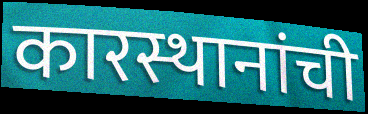
कारस्थानांची